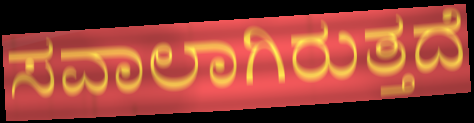
ಸವಾಲಾಗಿರುತ್ತದೆ